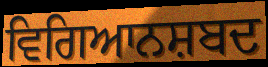
ਵਿਗਿਆਨਸ਼ਬਦ